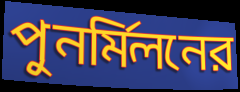
পুনর্মিলনের